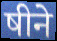
षीने